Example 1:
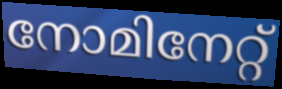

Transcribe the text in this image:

നോമിനേറ്റ്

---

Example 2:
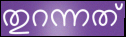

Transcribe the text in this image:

തുറന്നത്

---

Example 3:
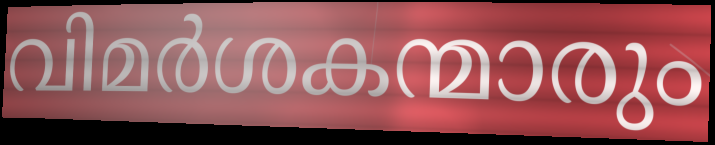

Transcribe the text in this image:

വിമർശകന്മാരും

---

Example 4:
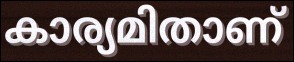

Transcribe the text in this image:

കാര്യമിതാണ്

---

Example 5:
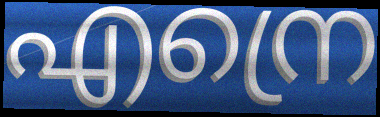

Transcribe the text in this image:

എന്രെ